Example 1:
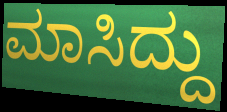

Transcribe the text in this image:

ಮಾಸಿದ್ದು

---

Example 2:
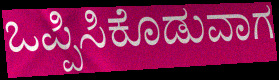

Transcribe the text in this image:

ಒಪ್ಪಿಸಿಕೊಡುವಾಗ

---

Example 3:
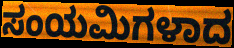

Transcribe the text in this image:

ಸಂಯಮಿಗಳಾದ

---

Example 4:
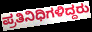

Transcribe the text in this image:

ಪ್ರತಿನಿಧಿಗಳಿದ್ದರು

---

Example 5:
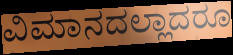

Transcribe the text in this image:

ವಿಮಾನದಲ್ಲಾದರೂ